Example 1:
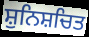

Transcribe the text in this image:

ਸ਼ੁਨਿਸ਼ਚਿਤ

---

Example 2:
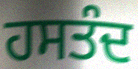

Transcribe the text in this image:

ਹਸਤੰਦ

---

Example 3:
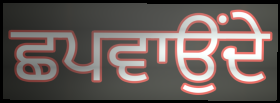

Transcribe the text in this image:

ਛਪਵਾਉਂਦੇ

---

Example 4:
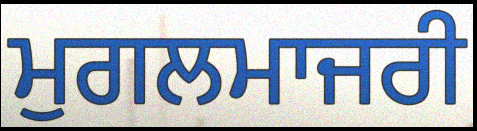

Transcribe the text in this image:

ਮੁਗਲਮਾਜਰੀ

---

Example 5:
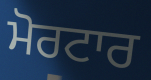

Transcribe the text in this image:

ਮੋਰਟਾਰ